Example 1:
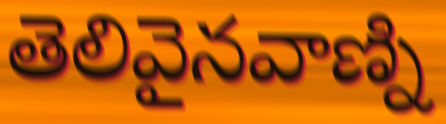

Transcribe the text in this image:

తెలివైనవాణ్ని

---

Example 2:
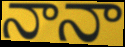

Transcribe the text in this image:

నానా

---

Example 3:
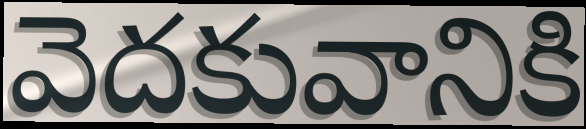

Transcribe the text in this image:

వెదకువానికి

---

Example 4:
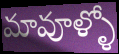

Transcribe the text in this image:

మావూళ్ళో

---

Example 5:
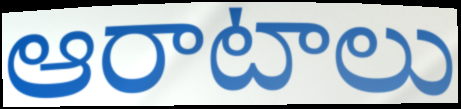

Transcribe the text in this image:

ఆరాటాలు